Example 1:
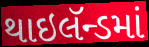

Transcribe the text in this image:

થાઇલૅન્ડમાં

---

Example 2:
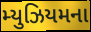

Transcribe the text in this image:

મ્યુઝિયમના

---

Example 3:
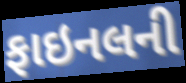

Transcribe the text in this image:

ફાઇનલની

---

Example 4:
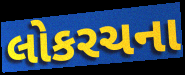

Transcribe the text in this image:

લોકરચના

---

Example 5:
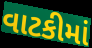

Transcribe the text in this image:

વાટકીમાં